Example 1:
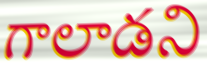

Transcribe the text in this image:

గాలాడని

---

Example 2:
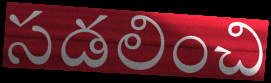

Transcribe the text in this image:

సడలించి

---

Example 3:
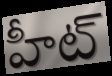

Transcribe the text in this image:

హీట్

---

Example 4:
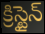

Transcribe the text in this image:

క్రిస్టైన్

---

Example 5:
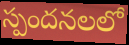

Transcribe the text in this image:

స్పందనలలో